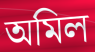
অমিল